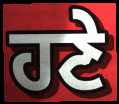
ਹਣੇ